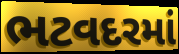
ભટવદરમાં